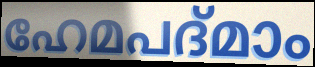
ഹേമപദ്മാം